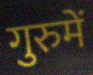
गुरुमें